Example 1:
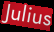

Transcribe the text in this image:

Julius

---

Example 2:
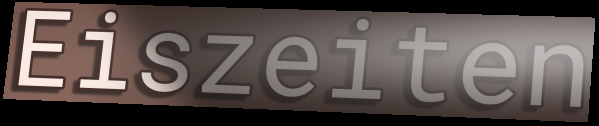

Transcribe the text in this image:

Eiszeiten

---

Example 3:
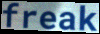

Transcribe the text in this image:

freak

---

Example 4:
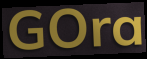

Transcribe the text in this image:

GOra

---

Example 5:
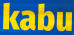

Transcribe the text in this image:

kabu